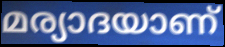
മര്യാദയാണ്